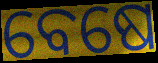
ବେଷେ